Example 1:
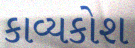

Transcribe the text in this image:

કાવ્યકોશ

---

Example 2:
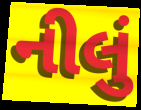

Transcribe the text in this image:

નીલું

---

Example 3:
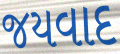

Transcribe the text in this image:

જયવાદ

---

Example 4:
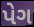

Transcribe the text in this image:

પેગ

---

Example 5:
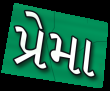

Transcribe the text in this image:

પ્રેમા